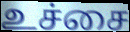
உச்சை